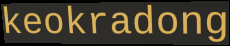
keokradong